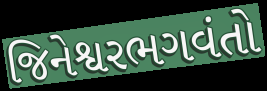
જિનેશ્વરભગવંતો